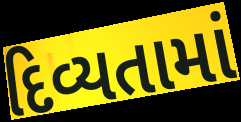
દિવ્યતામાં